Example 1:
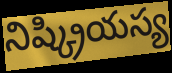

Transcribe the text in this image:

నిష్క్రియస్య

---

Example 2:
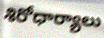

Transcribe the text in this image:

శిరోధార్యాలు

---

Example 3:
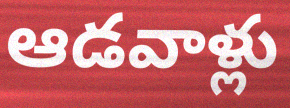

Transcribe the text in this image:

ఆడవాళ్లు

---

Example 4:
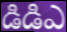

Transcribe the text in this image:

డిడిఎ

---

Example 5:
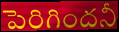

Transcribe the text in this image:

పెరిగిందనీ